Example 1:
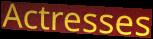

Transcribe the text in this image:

Actresses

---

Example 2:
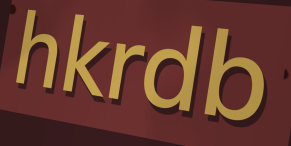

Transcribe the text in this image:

hkrdb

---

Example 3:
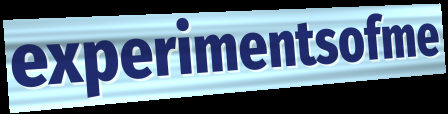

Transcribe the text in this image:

experimentsofme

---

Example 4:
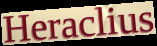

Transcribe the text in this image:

Heraclius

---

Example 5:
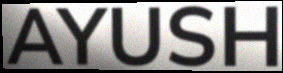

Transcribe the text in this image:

AYUSH